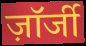
ज़ॉर्जी